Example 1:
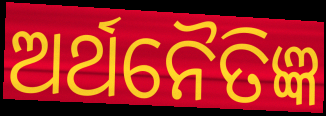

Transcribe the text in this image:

ଅର୍ଥନୈତିଜ୍ଞ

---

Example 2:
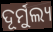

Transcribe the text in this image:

ଦୂର୍ମୁଲ୍ୟ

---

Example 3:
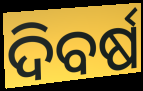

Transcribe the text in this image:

ଦିବର୍ଷ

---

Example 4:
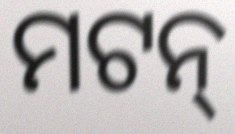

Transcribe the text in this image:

ମଟନ୍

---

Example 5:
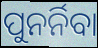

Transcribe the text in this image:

ପୁନର୍ନିବା